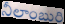
నీలాంబురి